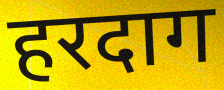
हरदाग